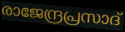
രാജേന്ദ്രപ്രസാദ്